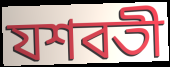
যশবতী